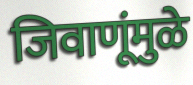
जिवाणूंमुळे